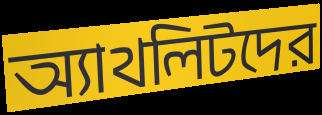
অ্যাথলিটদের